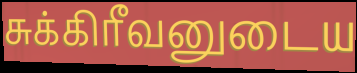
சுக்கிரீவனுடைய